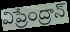
విప్రేంద్రాన్